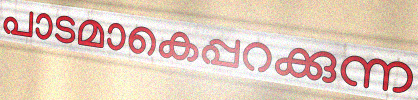
പാടമാകെപ്പറക്കുന്ന